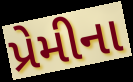
પ્રેમીના